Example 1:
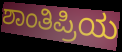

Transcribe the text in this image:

ಶಾಂತಿಪ್ರಿಯ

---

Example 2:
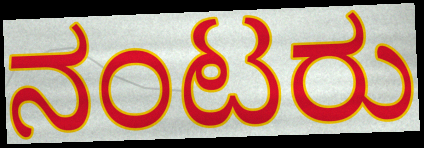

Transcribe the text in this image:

ನಂಟರು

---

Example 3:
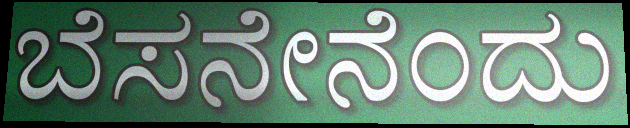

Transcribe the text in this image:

ಬೆಸನೇನೆಂದು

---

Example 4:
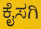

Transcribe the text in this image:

ಕೈಸಗಿ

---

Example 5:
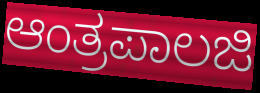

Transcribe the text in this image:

ಆಂತ್ರಪಾಲಜಿ